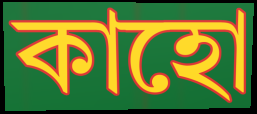
কাহো